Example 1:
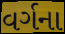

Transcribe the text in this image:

વર્ગના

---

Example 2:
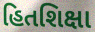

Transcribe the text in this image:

હિતશિક્ષા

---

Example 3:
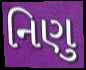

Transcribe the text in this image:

નિણુ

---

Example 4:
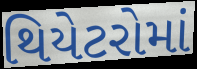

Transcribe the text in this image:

થિયેટરોમાં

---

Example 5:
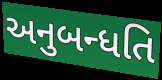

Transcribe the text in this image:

અનુબન્ધતિ